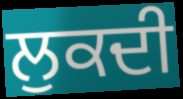
ਲੁਕਦੀ